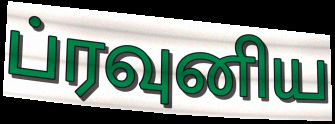
ப்ரவுனிய